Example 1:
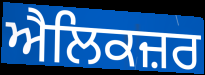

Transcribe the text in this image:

ਐਲਿਕਜ਼ਰ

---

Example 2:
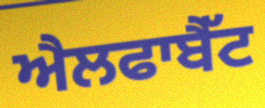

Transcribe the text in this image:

ਐਲਫਾਬੈੱਟ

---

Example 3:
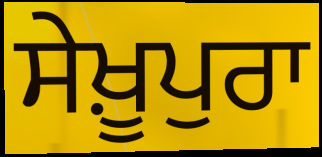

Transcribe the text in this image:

ਸੇਖ਼ੂਪੁਰਾ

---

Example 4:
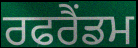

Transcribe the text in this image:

ਰਫਰੈਂਡਮ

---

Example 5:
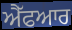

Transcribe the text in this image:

ਐੱਫਆਰ